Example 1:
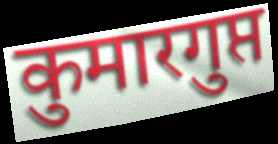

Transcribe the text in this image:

कुमारगुप्त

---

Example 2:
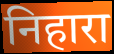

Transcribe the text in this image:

निहारा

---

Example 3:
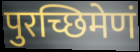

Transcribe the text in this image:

पुरच्छिमेणं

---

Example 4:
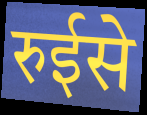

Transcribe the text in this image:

रुईसे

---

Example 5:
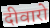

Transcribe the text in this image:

दीवारो